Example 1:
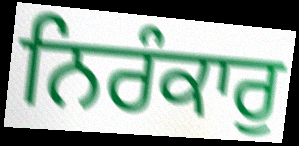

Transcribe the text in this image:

ਨਿਰੰਕਾਰੁ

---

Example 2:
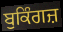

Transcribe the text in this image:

ਬੁਕਿੰਗਜ਼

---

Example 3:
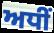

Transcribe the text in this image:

ਅਧੀਂ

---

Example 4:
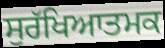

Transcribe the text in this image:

ਸੁਰੱਖਿਆਤਮਕ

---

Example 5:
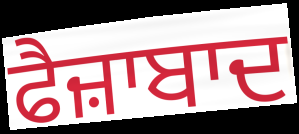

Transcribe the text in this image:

ਫੈਜ਼ਾਬਾਦ